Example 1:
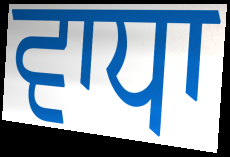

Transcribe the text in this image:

ਵਾਧਾ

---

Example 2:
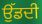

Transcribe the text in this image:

ਉੱਡਦੀ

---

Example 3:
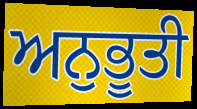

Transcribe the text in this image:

ਅਨੁਭੂਤੀ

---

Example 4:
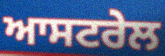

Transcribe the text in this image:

ਆਸਟਰੇਲ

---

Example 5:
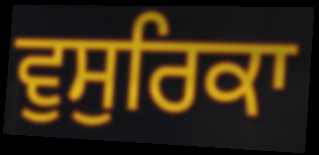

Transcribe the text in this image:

ਵੁਸੁਰਿਕਾ